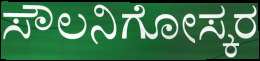
ಸೌಲನಿಗೋಸ್ಕರ